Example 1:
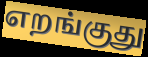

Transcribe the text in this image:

எறங்குது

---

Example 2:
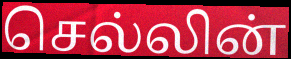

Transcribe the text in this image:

செல்லின்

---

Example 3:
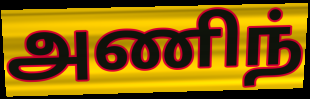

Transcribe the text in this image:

அணிந்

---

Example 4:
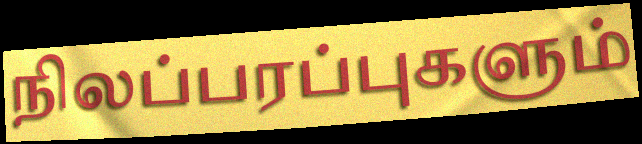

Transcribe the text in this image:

நிலப்பரப்புகளும்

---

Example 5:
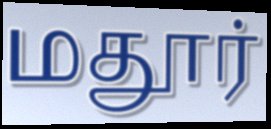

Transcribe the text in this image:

மதூர்